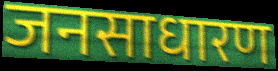
जनसाधारण